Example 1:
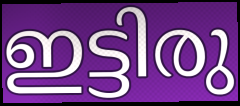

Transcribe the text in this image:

ഇട്ടിരു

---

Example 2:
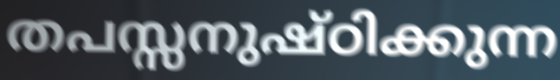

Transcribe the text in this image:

തപസ്സനുഷ്ഠിക്കുന്ന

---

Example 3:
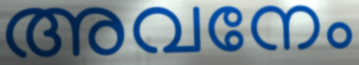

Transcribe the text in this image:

അവനേം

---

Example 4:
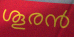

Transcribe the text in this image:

ശൂരൻ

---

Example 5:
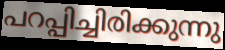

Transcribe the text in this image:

പറപ്പിച്ചിരിക്കുന്നു